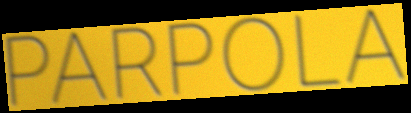
PARPOLA